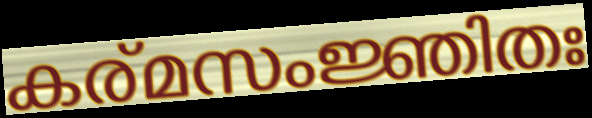
കര്മസംജ്ഞിതഃ